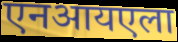
एनआयएला